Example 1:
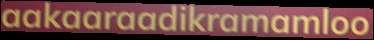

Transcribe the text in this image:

aakaaraadikramamloo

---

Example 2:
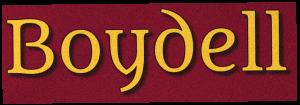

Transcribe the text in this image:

Boydell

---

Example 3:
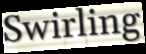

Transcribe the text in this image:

Swirling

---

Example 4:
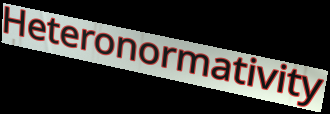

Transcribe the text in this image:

Heteronormativity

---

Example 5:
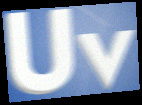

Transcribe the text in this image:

Uv